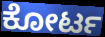
ಕೋರ್ಟ